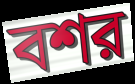
বশর